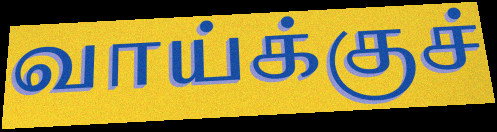
வாய்க்குச்